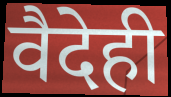
वैदेही